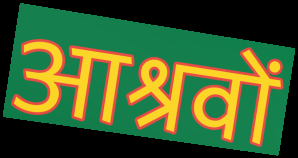
आश्रवों